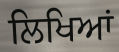
ਲਿਖਿਆਂ